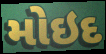
મોઇદ